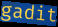
gadit